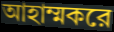
আহাম্মকরে